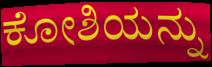
ಕೋಶಿಯನ್ನು